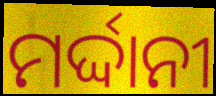
ମର୍ଦ୍ଦାନୀ